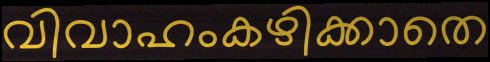
വിവാഹംകഴിക്കാതെ